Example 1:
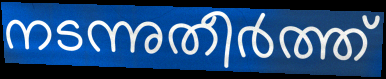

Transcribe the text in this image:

നടന്നുതീർത്ത്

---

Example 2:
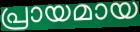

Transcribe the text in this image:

പ്രായമായ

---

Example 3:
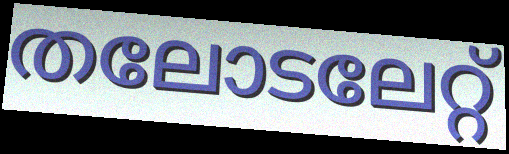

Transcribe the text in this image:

തലോടലേറ്റ്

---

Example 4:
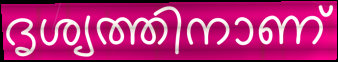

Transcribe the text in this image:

ദൃശ്യത്തിനാണ്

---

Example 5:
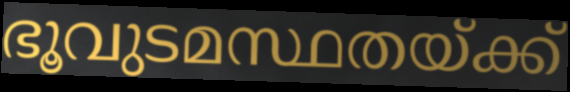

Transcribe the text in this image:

ഭൂവുടമസ്ഥതയ്ക്ക്